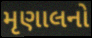
મૃણાલનો